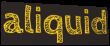
aliquid